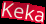
Keka